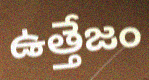
ఉత్తేజం